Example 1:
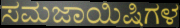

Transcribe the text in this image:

ಸಮಜಾಯಿಷಿಗಳ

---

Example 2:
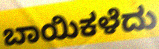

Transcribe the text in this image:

ಬಾಯಿಕಳೆದು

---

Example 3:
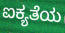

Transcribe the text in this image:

ಐಕ್ಯತೆಯ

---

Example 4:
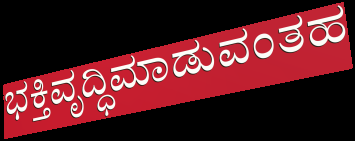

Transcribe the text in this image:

ಭಕ್ತಿವೃದ್ಧಿಮಾಡುವಂತಹ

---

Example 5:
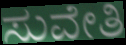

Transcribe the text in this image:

ಸುವೇತಿ